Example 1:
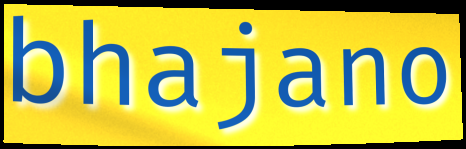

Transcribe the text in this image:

bhajano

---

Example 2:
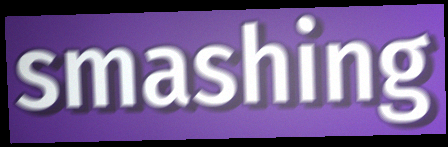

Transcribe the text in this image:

smashing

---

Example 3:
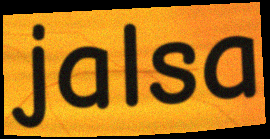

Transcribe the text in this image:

jalsa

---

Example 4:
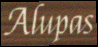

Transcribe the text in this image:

Alupas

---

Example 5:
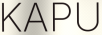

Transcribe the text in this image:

KAPU